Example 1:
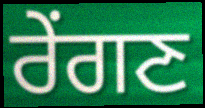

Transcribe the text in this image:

ਰੇਂਗਣ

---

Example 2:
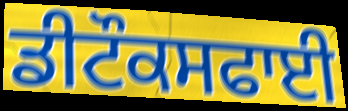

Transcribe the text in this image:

ਡੀਟੌਕਸਫਾਈ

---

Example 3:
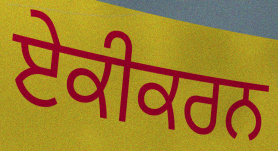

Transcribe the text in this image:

ਏਕੀਕਰਨ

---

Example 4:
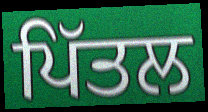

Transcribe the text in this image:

ਪਿੱਤਲ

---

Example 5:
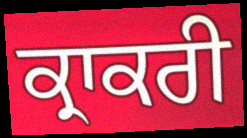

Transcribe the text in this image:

ਕ੍ਰਾਕਰੀ